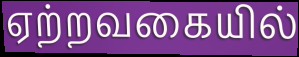
ஏற்றவகையில்